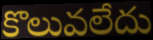
కొలువలేదు